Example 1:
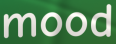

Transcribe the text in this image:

mood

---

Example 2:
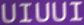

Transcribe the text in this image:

UIUUI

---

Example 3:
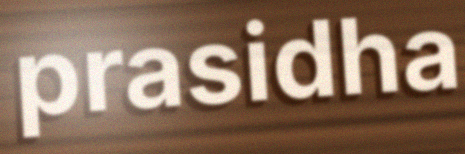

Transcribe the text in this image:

prasidha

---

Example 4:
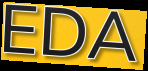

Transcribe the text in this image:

EDA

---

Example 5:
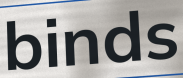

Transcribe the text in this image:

binds